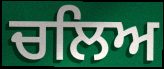
ਚਲਿਅ